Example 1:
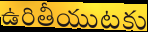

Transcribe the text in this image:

ఉరితీయుటకు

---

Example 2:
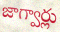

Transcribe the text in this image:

జాగ్వార్లు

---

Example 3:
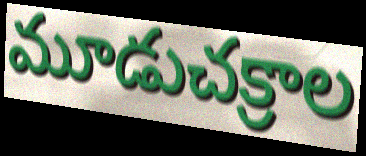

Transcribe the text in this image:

మూడుచక్రాల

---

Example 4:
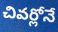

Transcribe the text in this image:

చివర్లోనే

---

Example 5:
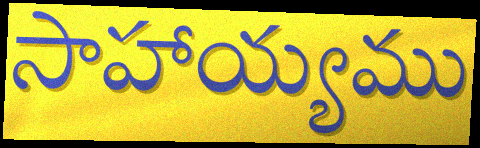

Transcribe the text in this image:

సాహాయ్యము